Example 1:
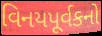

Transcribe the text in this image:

વિનયપૂર્વકનો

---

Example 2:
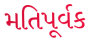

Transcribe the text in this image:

મતિપૂર્વક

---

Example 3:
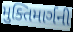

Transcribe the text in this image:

મુક્તિમાર્ગની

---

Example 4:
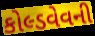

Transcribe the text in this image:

કોલ્ડવેવની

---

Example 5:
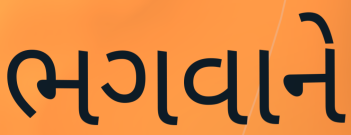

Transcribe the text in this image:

ભગવાને